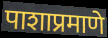
पाशाप्रमाणे